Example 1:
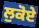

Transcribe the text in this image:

ਲੁਕੋਏ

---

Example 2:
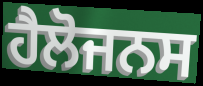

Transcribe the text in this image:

ਹੈਲੋਜਨਸ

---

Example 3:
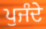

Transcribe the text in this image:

ਪੁਜੰਦੇ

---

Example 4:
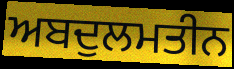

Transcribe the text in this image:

ਅਬਦੁਲਮਤੀਨ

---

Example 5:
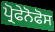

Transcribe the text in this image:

ਪ੍ਰੋਫੇਨੋਫੋਸ